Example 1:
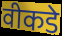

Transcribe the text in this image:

वीकडे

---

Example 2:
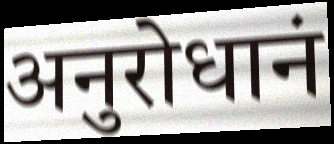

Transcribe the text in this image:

अनुरोधानं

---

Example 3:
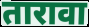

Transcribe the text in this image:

तारावा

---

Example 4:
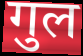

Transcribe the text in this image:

गुल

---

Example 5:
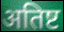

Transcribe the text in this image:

अतिष्ट